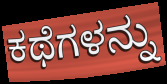
ಕಥೆಗಳನ್ನು